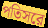
পতিসরে